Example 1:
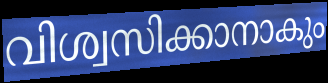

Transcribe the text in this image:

വിശ്വസിക്കാനാകും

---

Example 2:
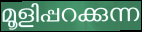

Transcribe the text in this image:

മൂളിപ്പറക്കുന്ന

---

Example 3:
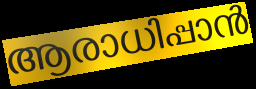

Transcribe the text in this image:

ആരാധിപ്പാൻ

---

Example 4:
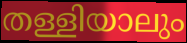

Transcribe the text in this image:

തള്ളിയാലും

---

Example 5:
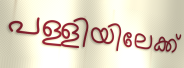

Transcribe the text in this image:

പള്ളിയിലേക്ക്